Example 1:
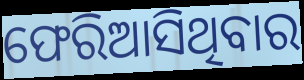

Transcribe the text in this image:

ଫେରିଆସିଥିବାର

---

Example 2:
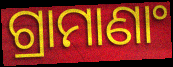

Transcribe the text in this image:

ଗ୍ରାମାଣାଂ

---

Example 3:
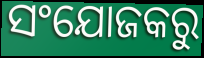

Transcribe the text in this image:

ସଂଯୋଜକରୁ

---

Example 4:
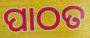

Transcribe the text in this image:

ପାଠତ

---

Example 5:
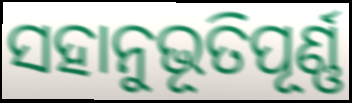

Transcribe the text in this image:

ସହାନୁଭୂତିପୂର୍ଣ୍ଣ